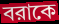
বরাকে